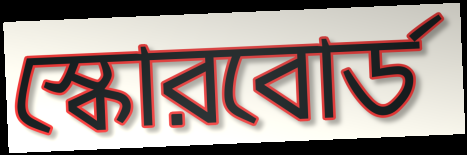
স্কোরবোর্ড